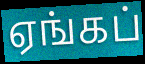
ஏங்கப்